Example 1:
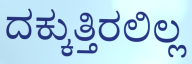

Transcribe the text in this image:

ದಕ್ಕುತ್ತಿರಲಿಲ್ಲ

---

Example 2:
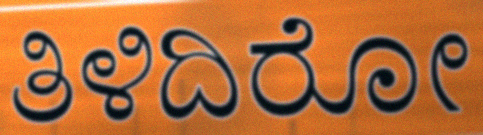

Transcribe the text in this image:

ತಿಳಿದಿರೋ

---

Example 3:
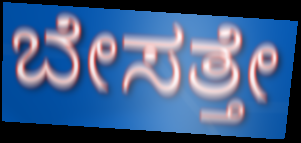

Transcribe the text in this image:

ಬೇಸತ್ತೇ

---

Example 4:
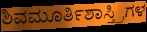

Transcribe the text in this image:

ಶಿವಮೂರ್ತಿಶಾಸ್ತ್ರಿಗಳ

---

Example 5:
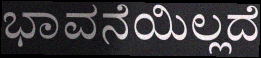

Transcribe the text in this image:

ಭಾವನೆಯಿಲ್ಲದೆ